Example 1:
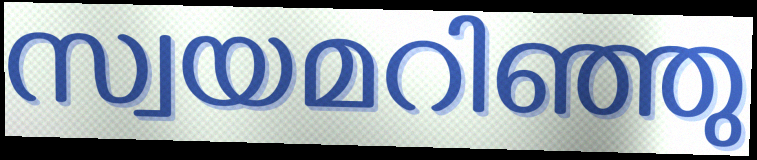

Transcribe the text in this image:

സ്വയമറിഞ്ഞു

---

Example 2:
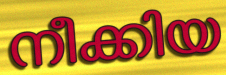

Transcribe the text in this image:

നീക്കിയ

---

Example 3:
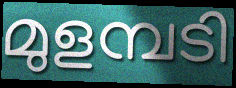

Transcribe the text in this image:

മുളമ്പടി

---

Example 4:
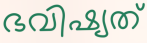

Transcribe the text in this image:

ഭവിഷ്യത്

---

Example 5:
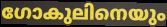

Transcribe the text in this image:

ഗോകുലിനെയും